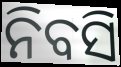
ନିବସି